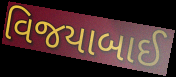
વિજયાબાઈ